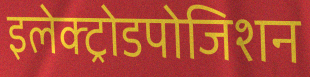
इलेक्ट्रोडपोजिशन